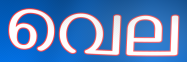
വെല